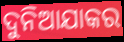
ଦୁନିଆଯାକର